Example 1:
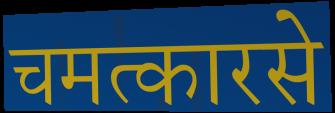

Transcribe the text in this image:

चमत्कारसे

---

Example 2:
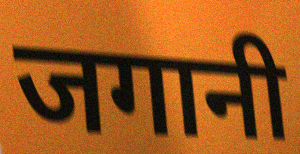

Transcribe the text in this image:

जगानी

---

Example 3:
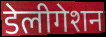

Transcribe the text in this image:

डेलीगेशन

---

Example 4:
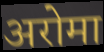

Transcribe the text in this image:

अरोमा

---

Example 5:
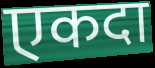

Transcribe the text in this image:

एकदा